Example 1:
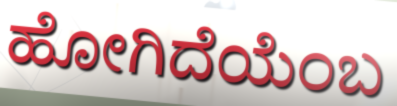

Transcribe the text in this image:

ಹೋಗಿದೆಯೆಂಬ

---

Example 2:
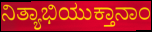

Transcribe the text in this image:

ನಿತ್ಯಾಭಿಯುಕ್ತಾನಾಂ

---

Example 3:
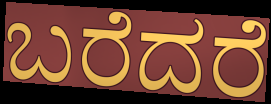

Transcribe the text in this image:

ಬರೆದರೆ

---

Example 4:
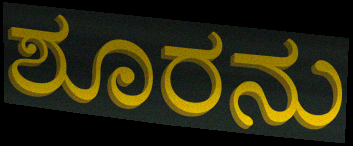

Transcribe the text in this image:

ಶೂರನು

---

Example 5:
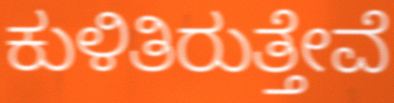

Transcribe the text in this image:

ಕುಳಿತಿರುತ್ತೇವೆ